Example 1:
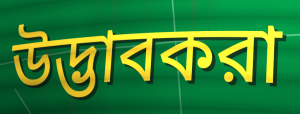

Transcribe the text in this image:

উদ্ভাবকরা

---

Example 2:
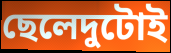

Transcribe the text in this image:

ছেলেদুটোই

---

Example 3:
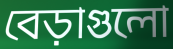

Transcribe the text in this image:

বেড়াগুলো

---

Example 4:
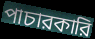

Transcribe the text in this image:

পাচারকারি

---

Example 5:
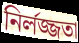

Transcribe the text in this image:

নির্লজ্জতা